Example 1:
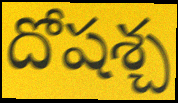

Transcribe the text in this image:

దోషశ్చ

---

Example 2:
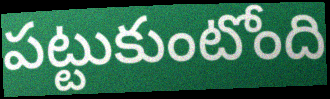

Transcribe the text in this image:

పట్టుకుంటోంది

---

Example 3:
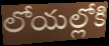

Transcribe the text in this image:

లోయల్లోకి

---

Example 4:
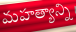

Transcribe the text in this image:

మహత్యాన్ని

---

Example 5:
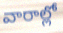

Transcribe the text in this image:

వారాల్లో